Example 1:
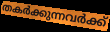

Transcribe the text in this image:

തകർക്കുന്നവർക്ക്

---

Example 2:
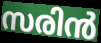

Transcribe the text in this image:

സരിൻ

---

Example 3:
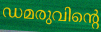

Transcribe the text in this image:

ഡമരുവിന്റെ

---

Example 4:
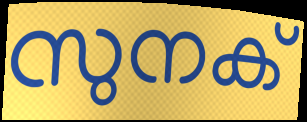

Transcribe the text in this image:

സുനക്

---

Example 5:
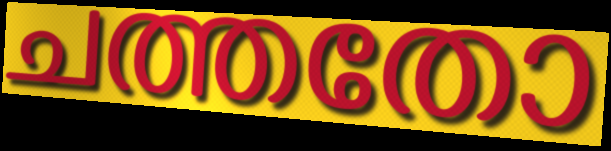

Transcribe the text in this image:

ചത്തതോ